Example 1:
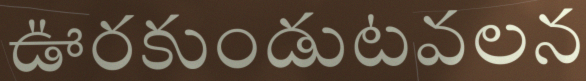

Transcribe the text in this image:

ఊరకుండుటవలన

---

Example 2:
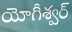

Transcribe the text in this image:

యోగీశ్వర్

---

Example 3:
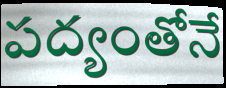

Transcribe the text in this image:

పద్యంతోనే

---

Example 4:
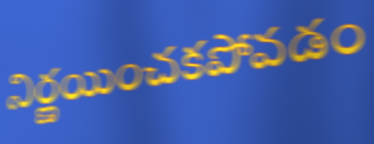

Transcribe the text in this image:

నిర్ణయించకపోవడం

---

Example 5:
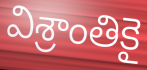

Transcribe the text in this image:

విశ్రాంతికై